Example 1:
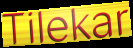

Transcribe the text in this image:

Tilekar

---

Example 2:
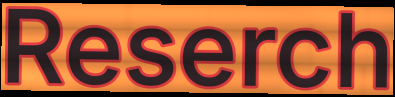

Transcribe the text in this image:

Reserch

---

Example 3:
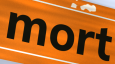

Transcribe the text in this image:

mort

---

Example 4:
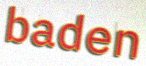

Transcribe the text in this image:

baden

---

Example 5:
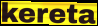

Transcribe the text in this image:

kereta